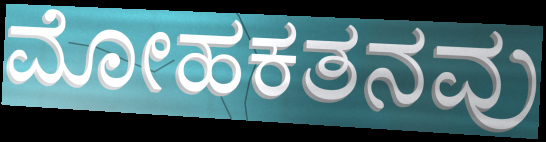
ಮೋಹಕತನವು